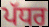
ਪੱਧਰ